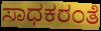
ಸಾಧಕರಂತೆ